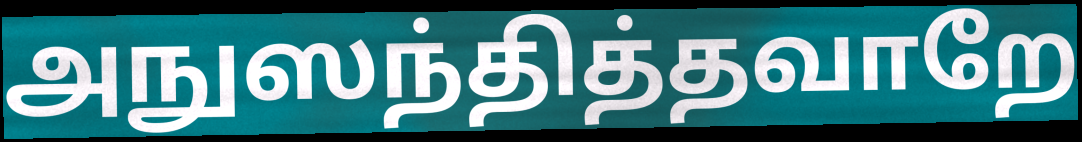
அநுஸந்தித்தவாறே